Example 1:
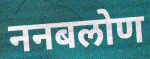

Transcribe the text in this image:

ननबलोण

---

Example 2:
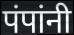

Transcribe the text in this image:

पंपांनी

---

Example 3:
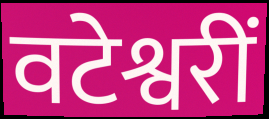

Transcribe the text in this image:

वटेश्वरीं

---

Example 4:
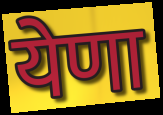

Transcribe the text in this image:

येणा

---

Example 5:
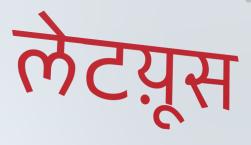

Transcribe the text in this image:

लेटय़ूस